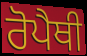
ਰੋਪੈਥੀ